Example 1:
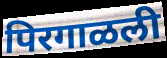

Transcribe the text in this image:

पिरगाळली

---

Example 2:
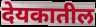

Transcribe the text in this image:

देयकातील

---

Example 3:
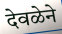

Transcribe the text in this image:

देवळेने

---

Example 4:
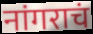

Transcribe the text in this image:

नांगराचं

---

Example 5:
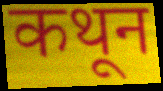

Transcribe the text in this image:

कथून